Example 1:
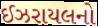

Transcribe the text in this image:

ઈઝરાયલનો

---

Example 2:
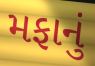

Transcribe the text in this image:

મફાનું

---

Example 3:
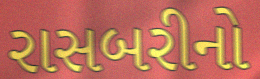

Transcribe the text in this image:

રાસબરીનો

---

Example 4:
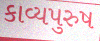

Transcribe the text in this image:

કાવ્યપુરુષ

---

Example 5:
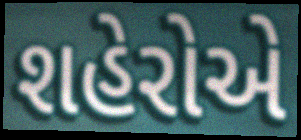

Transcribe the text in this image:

શહેરોએ